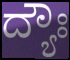
ದ್ಯೌಃ